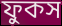
ফুকস